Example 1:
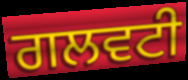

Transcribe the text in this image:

ਗਲਵਟੀ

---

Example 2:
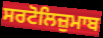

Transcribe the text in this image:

ਸਰਟੋਲਿਜ਼ੁਮਾਬ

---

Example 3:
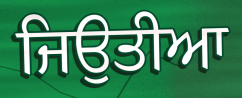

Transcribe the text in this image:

ਜਿਉਤੀਆ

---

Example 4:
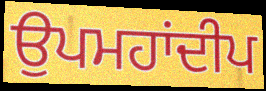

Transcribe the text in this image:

ਉਪਮਹਾਂਦੀਪ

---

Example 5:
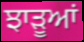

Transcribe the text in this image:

ਝਾੜੂਆਂ